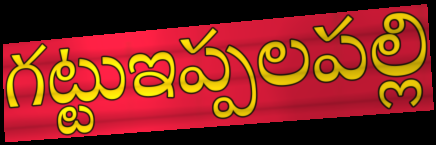
గట్టుఇప్పలపల్లి